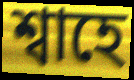
শ্বাহে